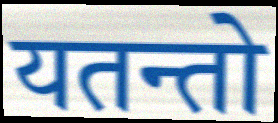
यतन्तो